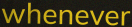
whenever